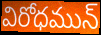
విరోధమున్